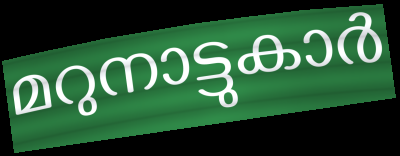
മറുനാട്ടുകാർ